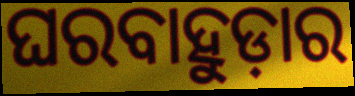
ଘରବାହୁଡ଼ାର